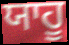
ਯਾਹੂ